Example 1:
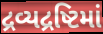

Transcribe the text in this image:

દ્રવ્યદ્રષ્ટિમાં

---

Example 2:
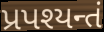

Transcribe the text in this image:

પ્રપશ્યન્તં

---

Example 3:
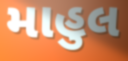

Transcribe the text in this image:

માહુલ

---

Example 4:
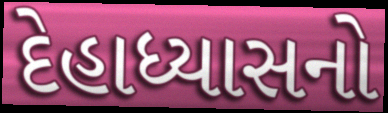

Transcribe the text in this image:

દેહાધ્યાસનો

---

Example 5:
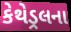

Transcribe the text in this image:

કેથેડ્રલના